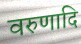
वरुणादि